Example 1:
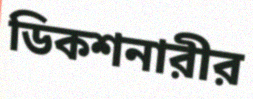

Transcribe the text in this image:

ডিকশনারীর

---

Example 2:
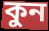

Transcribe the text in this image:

কুন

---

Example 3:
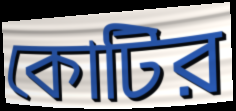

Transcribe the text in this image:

কোটির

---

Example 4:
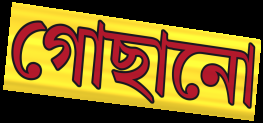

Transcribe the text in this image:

গোছানো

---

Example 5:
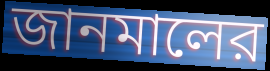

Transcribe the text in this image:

জানমালের